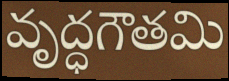
వృద్ధగౌతమి